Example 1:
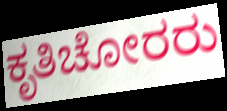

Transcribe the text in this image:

ಕೃತಿಚೋರರು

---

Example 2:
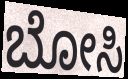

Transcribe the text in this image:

ಬೋಸಿ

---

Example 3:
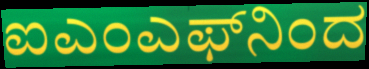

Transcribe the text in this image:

ಐಎಂಎಫ್‌ನಿಂದ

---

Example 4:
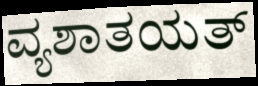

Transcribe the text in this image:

ವ್ಯಶಾತಯತ್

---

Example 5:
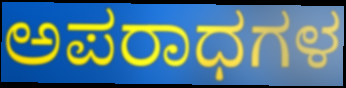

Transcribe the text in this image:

ಅಪರಾಧಗಳ